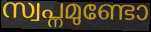
സ്വപ്നമുണ്ടോ